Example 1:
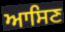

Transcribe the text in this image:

ਆਸਿਣ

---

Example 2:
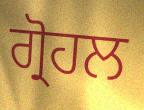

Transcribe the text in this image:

ਗ੍ਰੋਹਲ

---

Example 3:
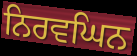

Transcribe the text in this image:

ਨਿਰਵਘਿਨ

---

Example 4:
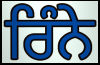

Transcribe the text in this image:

ਰਿੰਨੇ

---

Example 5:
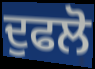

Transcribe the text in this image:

ਦੁਫਲੋ